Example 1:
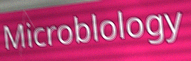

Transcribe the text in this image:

Microblology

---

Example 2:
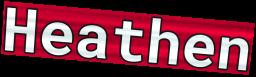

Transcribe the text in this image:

Heathen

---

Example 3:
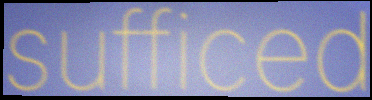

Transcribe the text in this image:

sufficed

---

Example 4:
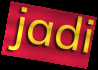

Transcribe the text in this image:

jadi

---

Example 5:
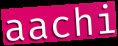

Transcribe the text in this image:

aachi